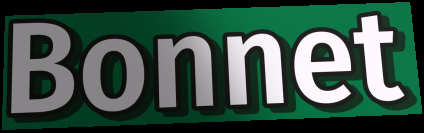
Bonnet